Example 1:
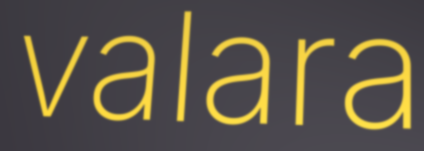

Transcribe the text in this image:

valara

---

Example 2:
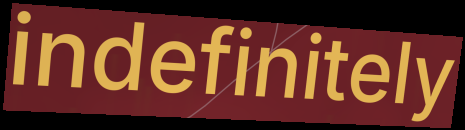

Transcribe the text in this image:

indefinitely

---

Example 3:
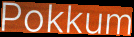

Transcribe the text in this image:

Pokkum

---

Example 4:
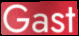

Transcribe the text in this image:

Gast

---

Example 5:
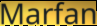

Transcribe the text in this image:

Marfan